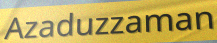
Azaduzzaman